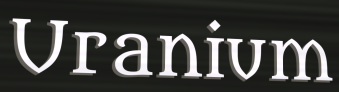
Uranium